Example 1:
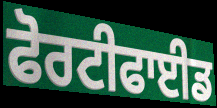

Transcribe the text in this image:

ਫੋਰਟੀਫਾਈਡ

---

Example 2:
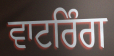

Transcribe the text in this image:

ਵਾਟਰਿੰਗ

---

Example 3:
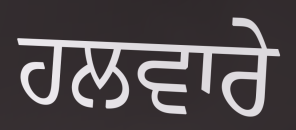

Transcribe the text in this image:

ਹਲਵਾਰੇ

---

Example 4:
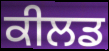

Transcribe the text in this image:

ਕੀਲਡ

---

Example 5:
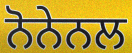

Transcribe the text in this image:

ਨੋਨੇਨਲ